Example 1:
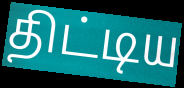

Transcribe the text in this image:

திட்டிய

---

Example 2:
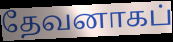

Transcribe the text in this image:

தேவனாகப்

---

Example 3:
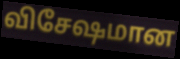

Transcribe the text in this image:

விசேஷமான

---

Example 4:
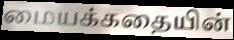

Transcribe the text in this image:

மையக்கதையின்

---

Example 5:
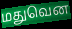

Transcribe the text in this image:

மதுவென